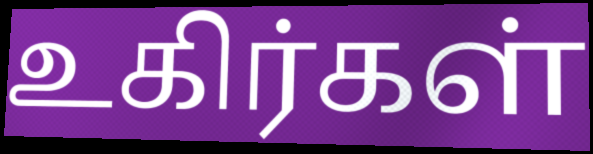
உகிர்கள்